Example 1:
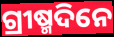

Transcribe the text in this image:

ଗ୍ରୀଷ୍ମଦିନେ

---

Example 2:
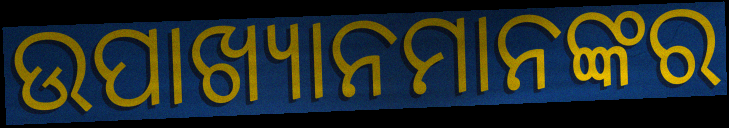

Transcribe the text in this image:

ଉପାଖ୍ୟାନମାନଙ୍କର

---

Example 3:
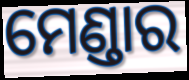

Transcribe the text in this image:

ମେଣ୍ଡାର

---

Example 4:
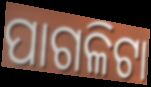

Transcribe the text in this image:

ପାଗଳିଟା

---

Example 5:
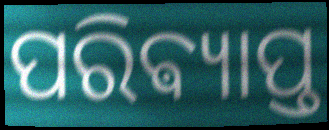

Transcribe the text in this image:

ପରିଵ୍ୟାପ୍ତ